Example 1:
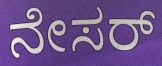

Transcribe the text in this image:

ನೇಸರ್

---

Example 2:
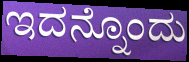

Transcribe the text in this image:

ಇದನ್ನೊಂದು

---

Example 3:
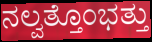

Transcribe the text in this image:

ನಲ್ವತ್ತೊಂಭತ್ತು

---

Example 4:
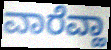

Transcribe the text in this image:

ವಾರೆವ್ಹಾ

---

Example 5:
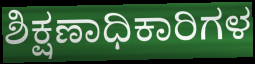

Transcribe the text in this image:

ಶಿಕ್ಷಣಾಧಿಕಾರಿಗಳ